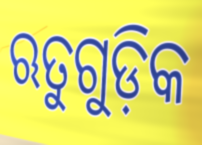
ଋତୁଗୁଡ଼ିକ